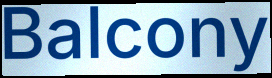
Balcony